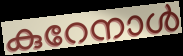
കുറേനാൾ